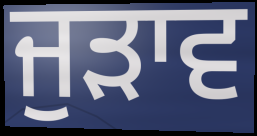
ਜੁੜਾਵ